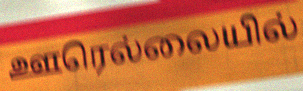
ஊரெல்லையில்